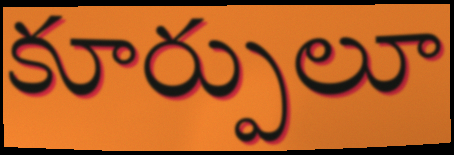
కూర్పులూ